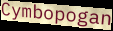
Cymbopogan